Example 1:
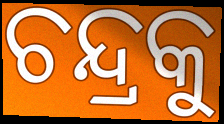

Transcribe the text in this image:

ଚନ୍ଦ୍ରକୁ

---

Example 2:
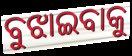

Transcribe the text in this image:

ବୁଝାଇବାକୁ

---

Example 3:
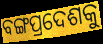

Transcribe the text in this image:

ବଙ୍ଗପ୍ରଦେଶକୁ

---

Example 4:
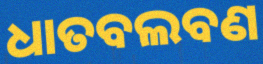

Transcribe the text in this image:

ଧାତବଲବଣ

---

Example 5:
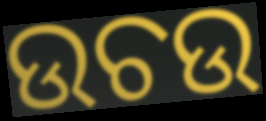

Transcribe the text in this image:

ଉଚଉ